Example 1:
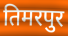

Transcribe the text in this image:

तिमरपुर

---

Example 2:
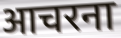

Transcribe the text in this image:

आचरना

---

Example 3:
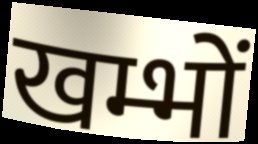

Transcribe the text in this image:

खम्भों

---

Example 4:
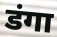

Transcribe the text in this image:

डंगा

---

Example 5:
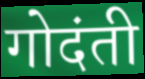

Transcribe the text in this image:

गोदंती